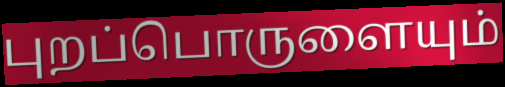
புறப்பொருளையும்